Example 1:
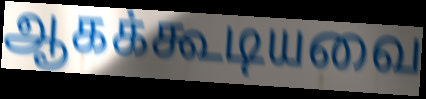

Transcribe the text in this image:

ஆகக்கூடியவை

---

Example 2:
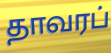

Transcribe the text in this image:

தாவரப்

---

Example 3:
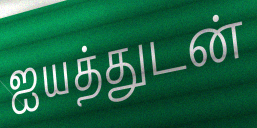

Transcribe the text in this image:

ஐயத்துடன்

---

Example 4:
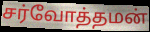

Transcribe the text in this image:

சர்வோத்தமன்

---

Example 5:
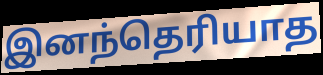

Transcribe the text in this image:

இனந்தெரியாத